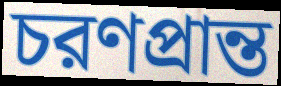
চরণপ্রান্ত